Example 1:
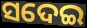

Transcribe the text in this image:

ସଦେଇ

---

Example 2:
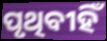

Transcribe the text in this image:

ପୃଥିବୀହିଁ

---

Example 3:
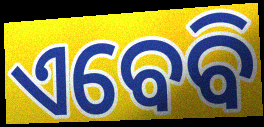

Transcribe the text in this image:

ଏବେବି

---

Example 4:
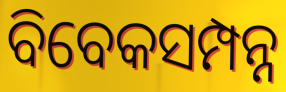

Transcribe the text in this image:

ବିବେକସମ୍ପନ୍ନ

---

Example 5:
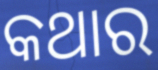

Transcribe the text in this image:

କଥାର